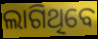
ଲାଗିଥିବେ